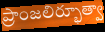
ప్రాంజలిర్భూత్వా